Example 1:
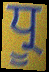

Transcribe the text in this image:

ਧ੍ਰੂ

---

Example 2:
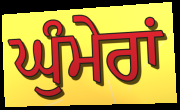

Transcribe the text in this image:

ਘੁੰਮੇਰਾਂ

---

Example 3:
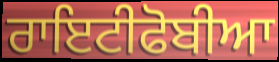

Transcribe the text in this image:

ਰਾਇਟੀਫੋਬੀਆ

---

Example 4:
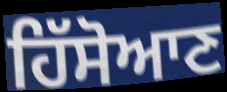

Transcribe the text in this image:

ਹਿੱਸੋਆਣ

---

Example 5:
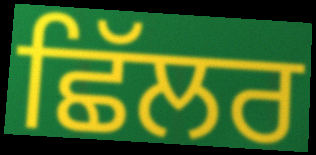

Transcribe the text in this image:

ਛਿੱਲਰ